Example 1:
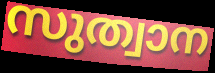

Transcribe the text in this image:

സുത്വാന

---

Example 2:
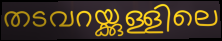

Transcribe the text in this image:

തടവറയ്ക്കുള്ളിലെ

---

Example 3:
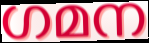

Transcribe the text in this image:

ഗമന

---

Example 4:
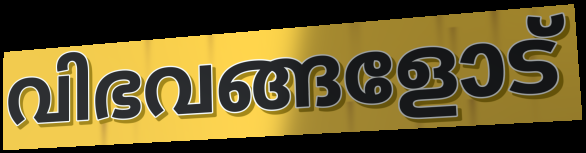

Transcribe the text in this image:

വിഭവങ്ങളോട്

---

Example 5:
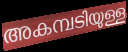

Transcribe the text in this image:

അകമ്പടിയുള്ള